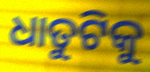
ଧାତୁଟିକୁ